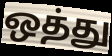
ஒத்து